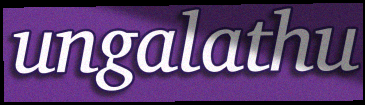
ungalathu